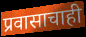
प्रवासाचाही